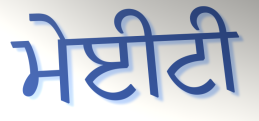
ਮੇਈਟੀ